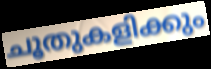
ചൂതുകളിക്കും